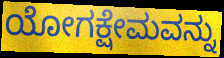
ಯೋಗಕ್ಷೇಮವನ್ನು